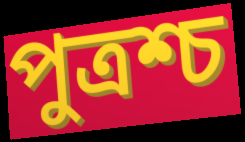
পুত্রশ্চ